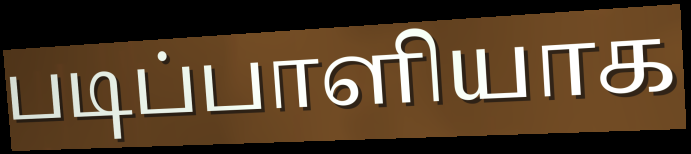
படிப்பாளியாக